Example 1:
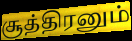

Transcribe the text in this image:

சூத்திரனும்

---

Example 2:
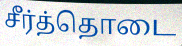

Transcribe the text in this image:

சீர்த்தொடை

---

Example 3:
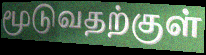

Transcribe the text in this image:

மூடுவதற்குள்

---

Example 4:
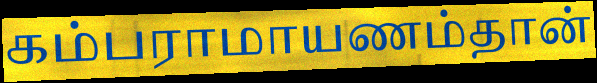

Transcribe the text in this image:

கம்பராமாயணம்தான்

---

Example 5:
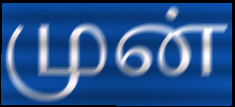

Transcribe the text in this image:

முன்